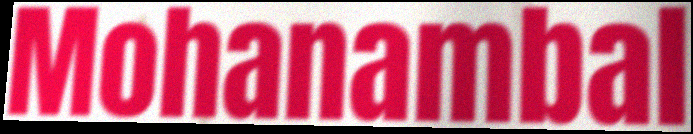
Mohanambal